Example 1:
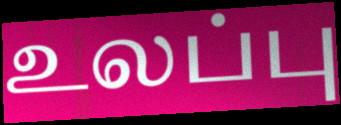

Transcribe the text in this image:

உலப்பு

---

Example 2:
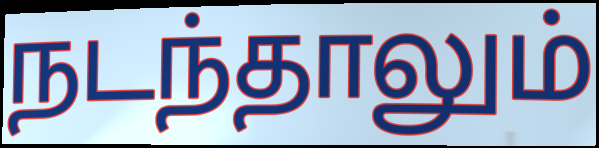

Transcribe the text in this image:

நடந்தாலும்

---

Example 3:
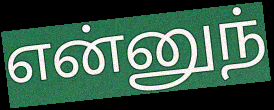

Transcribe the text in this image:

என்னுந்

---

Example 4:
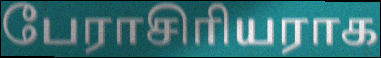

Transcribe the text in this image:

பேராசிரியராக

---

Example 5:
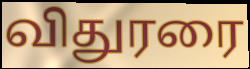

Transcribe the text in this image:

விதுரரை